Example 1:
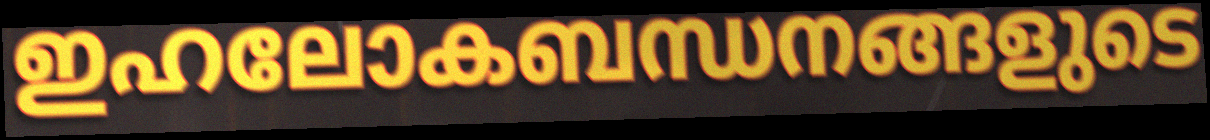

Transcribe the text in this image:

ഇഹലോകബന്ധനങ്ങളുടെ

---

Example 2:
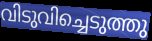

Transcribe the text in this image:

വിടുവിച്ചെടുത്തു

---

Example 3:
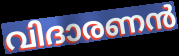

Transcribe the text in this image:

വിദാരണൻ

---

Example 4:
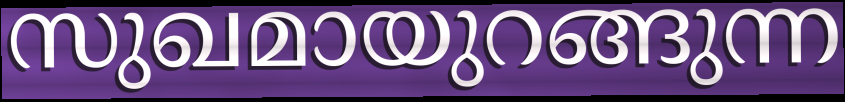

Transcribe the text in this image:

സുഖമായുറങ്ങുന്ന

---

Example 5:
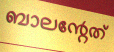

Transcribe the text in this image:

ബാലന്റേത്